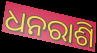
ଧନରାଶି